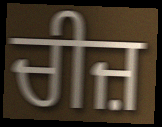
ਚੀਜ਼